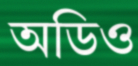
অডিও